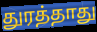
துரத்தாது